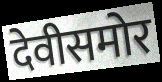
देवीसमोर